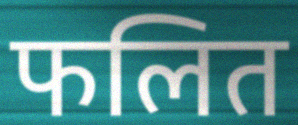
फलित